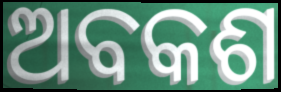
ଅବକଶ